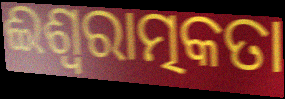
ଈଶ୍ଵରାତ୍ମକତା